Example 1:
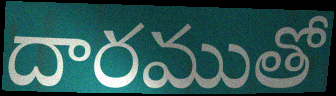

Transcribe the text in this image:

దారముతో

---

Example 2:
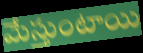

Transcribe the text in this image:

మేస్తుంటాయి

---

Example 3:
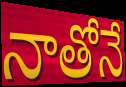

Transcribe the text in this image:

నాతోనే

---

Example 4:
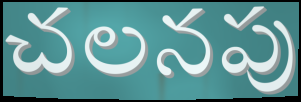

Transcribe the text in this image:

చలనపు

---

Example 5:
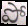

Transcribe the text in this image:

పో